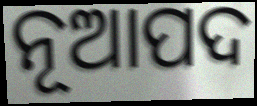
ନୂଆପଦ